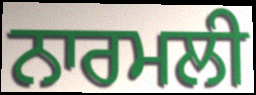
ਨਾਰਮਲੀ